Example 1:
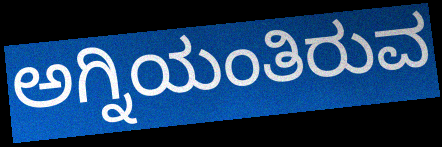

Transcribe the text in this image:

ಅಗ್ನಿಯಂತಿರುವ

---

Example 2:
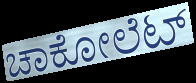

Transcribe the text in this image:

ಚಾಕೋಲೆಟ್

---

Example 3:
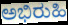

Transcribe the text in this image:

ಅಭಿರುಹಿ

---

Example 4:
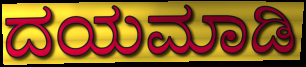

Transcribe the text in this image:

ದಯಮಾಡಿ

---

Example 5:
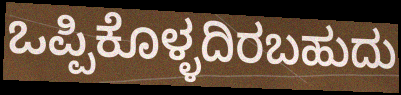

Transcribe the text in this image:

ಒಪ್ಪಿಕೊಳ್ಳದಿರಬಹುದು